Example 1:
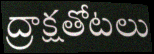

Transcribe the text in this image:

ద్రాక్షతోటలు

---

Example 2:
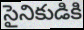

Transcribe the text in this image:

సైనికుడికి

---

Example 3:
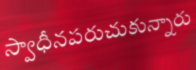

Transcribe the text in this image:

స్వాధీనపరుచుకున్నారు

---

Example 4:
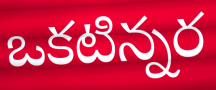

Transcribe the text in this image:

ఒకటిన్నర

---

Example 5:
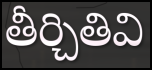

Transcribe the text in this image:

తీర్చితివి